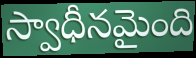
స్వాధీనమైంది